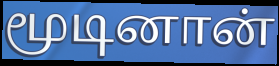
மூடினான்